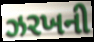
ઝરખની